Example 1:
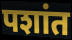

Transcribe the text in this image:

पशांत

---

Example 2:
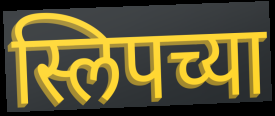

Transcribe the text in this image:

स्लिपच्या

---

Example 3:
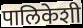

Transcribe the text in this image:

पालिकेशी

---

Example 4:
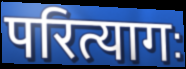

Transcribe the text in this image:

परित्यागः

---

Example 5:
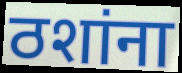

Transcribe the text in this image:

ठशांना